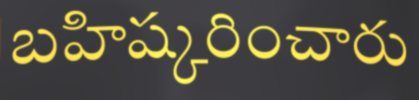
బహిష్కరించారు